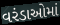
વરંડાઓમાં